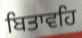
ਬਿਤਾਵਹਿ